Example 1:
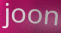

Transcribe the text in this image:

joon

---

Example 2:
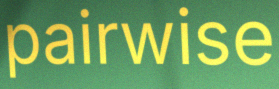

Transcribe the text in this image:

pairwise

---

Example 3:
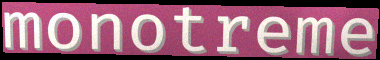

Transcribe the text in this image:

monotreme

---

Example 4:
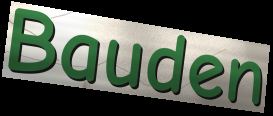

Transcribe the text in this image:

Bauden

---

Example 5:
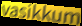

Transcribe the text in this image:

vasikkum